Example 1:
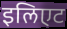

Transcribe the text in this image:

इलिएट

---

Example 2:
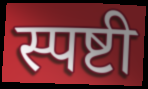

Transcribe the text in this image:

स्पष्टी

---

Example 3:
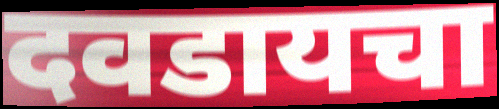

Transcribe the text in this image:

दवडायचा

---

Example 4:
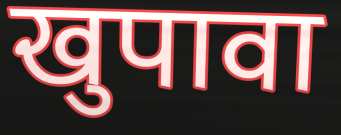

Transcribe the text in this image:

खुपावा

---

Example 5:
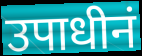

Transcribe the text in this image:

उपाधीनं